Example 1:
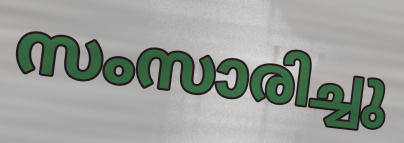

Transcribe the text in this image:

സംസാരിച്ചു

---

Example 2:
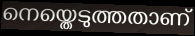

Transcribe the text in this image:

നെയ്തെടുത്തതാണ്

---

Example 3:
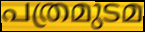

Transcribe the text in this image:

പത്രമുടമ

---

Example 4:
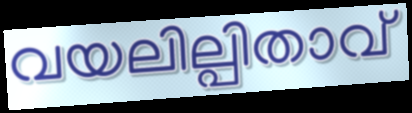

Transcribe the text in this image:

വയലില്പിതാവ്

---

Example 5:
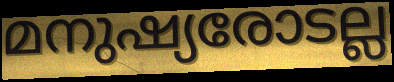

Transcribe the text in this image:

മനുഷ്യരോടല്ല